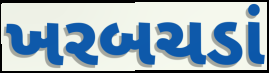
ખરબચડાં